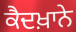
ਕੈਦਖ਼ਾਨੇ